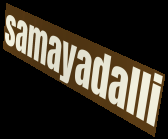
samayadalli